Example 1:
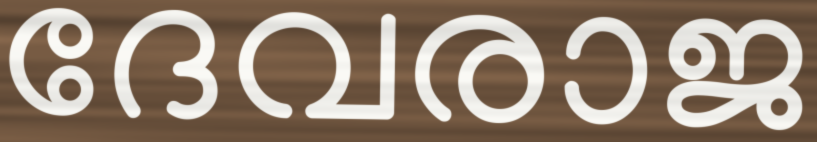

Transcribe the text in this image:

ദേവരാജ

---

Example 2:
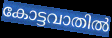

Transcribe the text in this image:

കോട്ടവാതിൽ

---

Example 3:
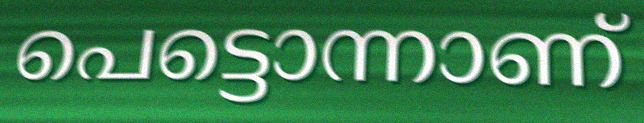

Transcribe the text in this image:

പെട്ടൊന്നാണ്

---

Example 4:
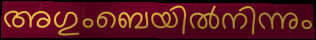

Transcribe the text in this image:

അഗുംബെയിൽനിന്നും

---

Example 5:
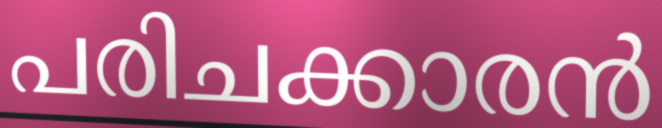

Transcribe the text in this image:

പരിചക്കാരൻ